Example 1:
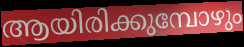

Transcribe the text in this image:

ആയിരിക്കുമ്പോഴും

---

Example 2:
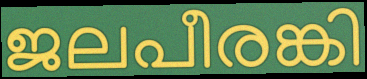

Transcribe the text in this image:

ജലപീരങ്കി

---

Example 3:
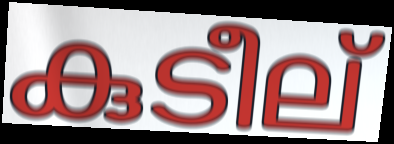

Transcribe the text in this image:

കുടീല്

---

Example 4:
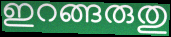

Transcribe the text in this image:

ഇറങ്ങരുതു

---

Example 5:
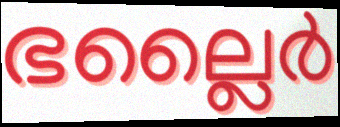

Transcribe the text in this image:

ഭല്ലൈർ